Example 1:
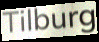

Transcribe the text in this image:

Tilburg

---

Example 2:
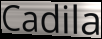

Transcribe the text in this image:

Cadila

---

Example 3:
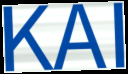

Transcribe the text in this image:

KAI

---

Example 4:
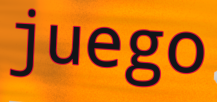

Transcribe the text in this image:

juego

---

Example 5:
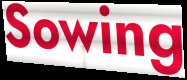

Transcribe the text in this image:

Sowing